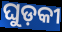
ଘୁଡ଼କୀ